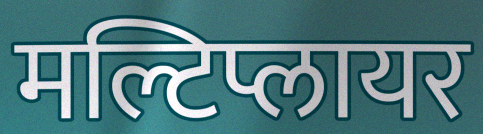
मल्टिप्लायर